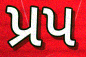
પ્રપ